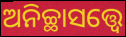
ଅନିଚ୍ଛାସତ୍ତ୍ବେ